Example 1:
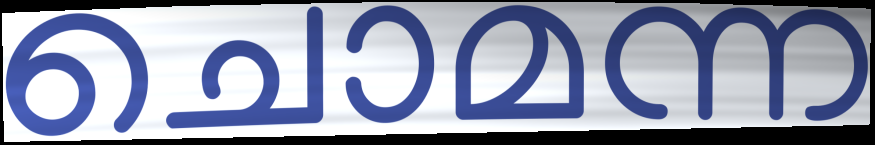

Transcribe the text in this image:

ചൊമന്ന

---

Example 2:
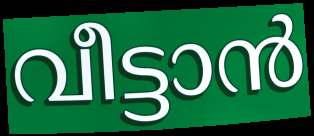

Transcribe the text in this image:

വീട്ടാൻ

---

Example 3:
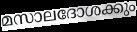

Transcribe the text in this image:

മസാലദോശക്കും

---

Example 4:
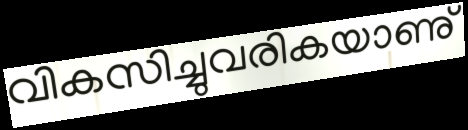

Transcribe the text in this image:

വികസിച്ചുവരികയാണു്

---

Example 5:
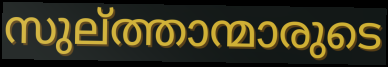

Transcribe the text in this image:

സുല്ത്താന്മാരുടെ